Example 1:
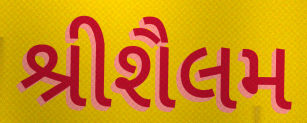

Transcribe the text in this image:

શ્રીશૈલમ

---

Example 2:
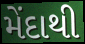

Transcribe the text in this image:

મેંદાથી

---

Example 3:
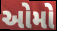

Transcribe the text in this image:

ઓમો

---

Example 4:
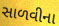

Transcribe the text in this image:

સાળવીના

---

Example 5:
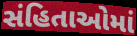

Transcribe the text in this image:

સંહિતાઓમાં